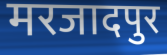
मरजादपुर